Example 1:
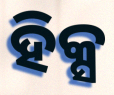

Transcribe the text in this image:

ହିକ୍ସ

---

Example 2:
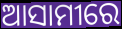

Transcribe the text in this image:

ଆସାମୀରେ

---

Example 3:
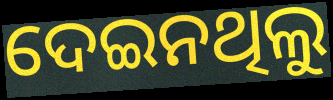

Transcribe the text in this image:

ଦେଇନଥିଲୁ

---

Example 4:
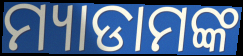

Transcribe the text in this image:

ମ୍ୟାଡାମଙ୍କ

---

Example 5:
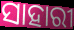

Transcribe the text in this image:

ସାହାରୀ